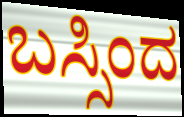
ಬಸ್ಸಿಂದ